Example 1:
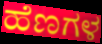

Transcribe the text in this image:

ಹೆಣಗಳ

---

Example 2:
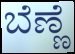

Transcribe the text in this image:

ಬೆಣ್ಣೆ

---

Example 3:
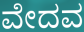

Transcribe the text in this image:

ವೇದವ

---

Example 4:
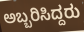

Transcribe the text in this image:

ಅಬ್ಬರಿಸಿದ್ದರು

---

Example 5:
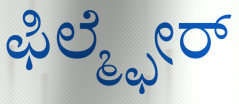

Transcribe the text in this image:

ಫಿಲ್ಮ್ಫೇರ್